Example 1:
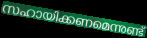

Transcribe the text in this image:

സഹായിക്കണമെന്നുണ്ട്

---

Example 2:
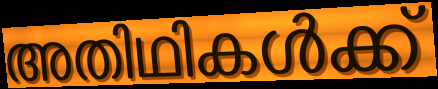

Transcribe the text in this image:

അതിഥികൾക്ക്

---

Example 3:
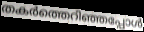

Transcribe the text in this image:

തകർത്തെറിഞ്ഞപ്പോൾ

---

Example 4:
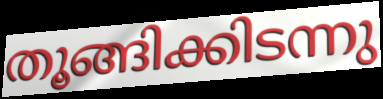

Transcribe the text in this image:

തൂങ്ങിക്കിടന്നു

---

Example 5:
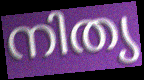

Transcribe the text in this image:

നിത്യ